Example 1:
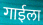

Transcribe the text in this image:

गाईला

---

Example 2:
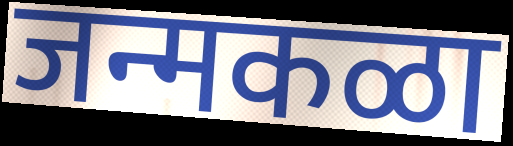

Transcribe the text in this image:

जन्मकळा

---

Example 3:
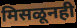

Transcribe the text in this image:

मिसळूनही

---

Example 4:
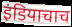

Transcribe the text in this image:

इंडियाचाच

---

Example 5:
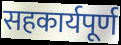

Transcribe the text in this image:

सहकार्यपूर्ण